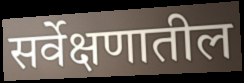
सर्वेक्षणातील